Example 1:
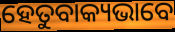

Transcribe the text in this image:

ହେତୁବାକ୍ୟଭାବେ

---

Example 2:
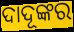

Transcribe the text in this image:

ଦାଦୂଙ୍କର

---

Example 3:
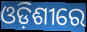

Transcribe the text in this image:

ଓଡ଼ିଶୀରେ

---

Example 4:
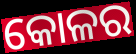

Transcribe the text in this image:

କୋଳର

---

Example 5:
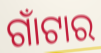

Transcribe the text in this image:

ଗାଁଟାର